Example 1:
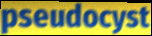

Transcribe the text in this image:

pseudocyst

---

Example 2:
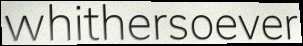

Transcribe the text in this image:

whithersoever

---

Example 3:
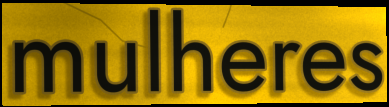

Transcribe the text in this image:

mulheres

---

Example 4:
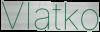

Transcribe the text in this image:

Vlatko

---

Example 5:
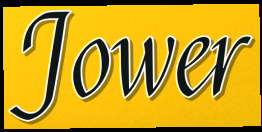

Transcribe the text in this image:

Jower